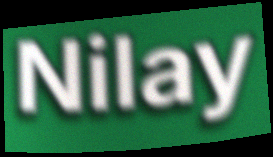
Nilay